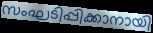
സംഘടിപ്പിക്കാനായി